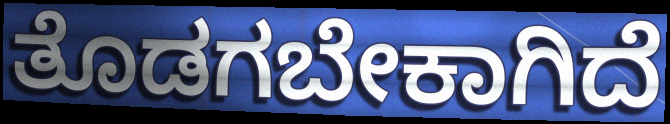
ತೊಡಗಬೇಕಾಗಿದೆ